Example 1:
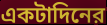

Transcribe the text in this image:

একটাদিনের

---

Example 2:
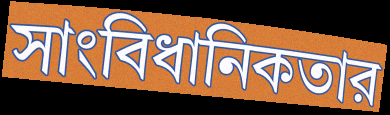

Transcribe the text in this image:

সাংবিধানিকতার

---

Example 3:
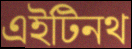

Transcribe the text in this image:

এইটিনথ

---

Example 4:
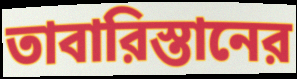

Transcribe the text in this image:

তাবারিস্তানের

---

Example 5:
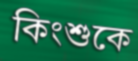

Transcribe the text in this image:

কিংশুকে